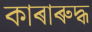
কাৰাৰুদ্ধ